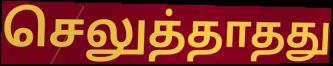
செலுத்தாதது